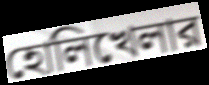
হোলিখেলার